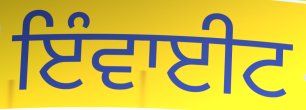
ਇੰਵਾਈਟ